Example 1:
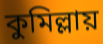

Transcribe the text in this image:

কুমিল্লায়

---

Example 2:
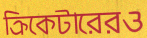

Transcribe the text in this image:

ক্রিকেটারেরও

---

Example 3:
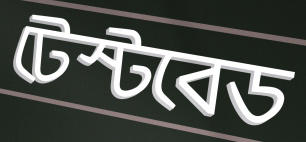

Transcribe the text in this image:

টেস্টবেড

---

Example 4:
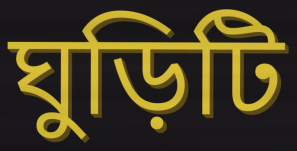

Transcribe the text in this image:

ঘুড়িটি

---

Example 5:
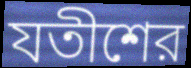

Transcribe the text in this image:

যতীশের